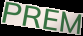
PREM